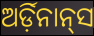
ଅର୍ଡ଼ିନାନ୍‌ସ